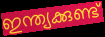
ഇന്ത്യക്കുണ്ട്